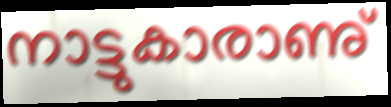
നാട്ടുകാരാണു്